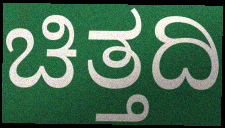
ಚಿತ್ತದಿ